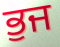
ਭੁਜ